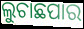
ଲୁଚାଛପାର